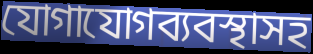
যোগাযোগব্যবস্থাসহ